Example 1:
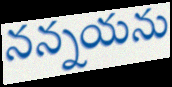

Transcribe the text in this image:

నన్నయను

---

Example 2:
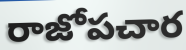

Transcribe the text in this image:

రాజోపచార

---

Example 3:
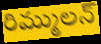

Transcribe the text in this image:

రిమ్ములన్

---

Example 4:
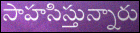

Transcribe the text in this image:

సాహసిస్తున్నారు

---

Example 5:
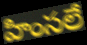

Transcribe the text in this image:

హింసలే